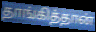
தாங்கித்தான்